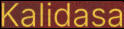
Kalidasa